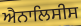
ਐਨਾਲਿਸੀਸ